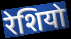
रेशियो